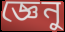
জ্ঞেনু